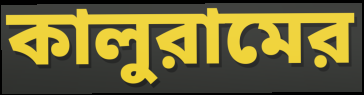
কালুরামের